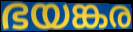
ഭയങ്കര